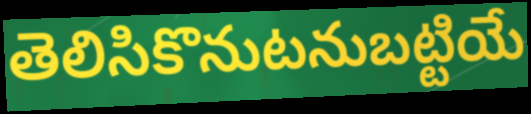
తెలిసికొనుటనుబట్టియే